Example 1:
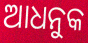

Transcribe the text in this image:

ଆଧନୁକ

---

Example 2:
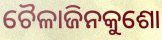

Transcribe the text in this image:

ଚୈଳାଜିନକୁଶୋ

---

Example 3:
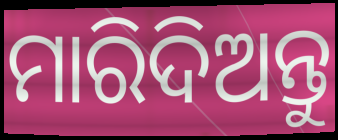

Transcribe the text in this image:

ମାରିଦିଅନ୍ତୁ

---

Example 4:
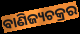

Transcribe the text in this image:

ବାଣିଜ୍ୟଚକ୍ରର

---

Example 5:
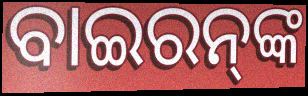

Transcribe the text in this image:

ବାଇରନ୍‌ଙ୍କ